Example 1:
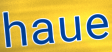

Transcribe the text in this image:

haue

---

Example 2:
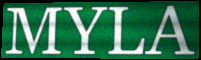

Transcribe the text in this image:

MYLA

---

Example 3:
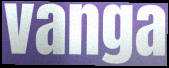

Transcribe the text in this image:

vanga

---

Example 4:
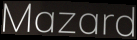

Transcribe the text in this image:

Mazard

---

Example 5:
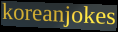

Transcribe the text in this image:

koreanjokes